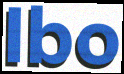
Ibo